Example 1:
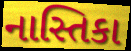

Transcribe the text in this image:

નાસ્તિકા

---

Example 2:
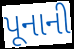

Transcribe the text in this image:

પૂનાની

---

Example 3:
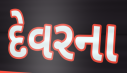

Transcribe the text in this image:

દેવરના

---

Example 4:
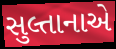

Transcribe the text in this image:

સુલ્તાનાએ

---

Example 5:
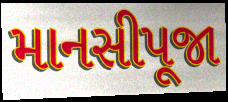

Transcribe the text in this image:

માનસીપૂજા